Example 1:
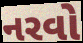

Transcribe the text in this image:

નરવો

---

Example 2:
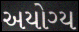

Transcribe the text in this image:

અયોગ્ય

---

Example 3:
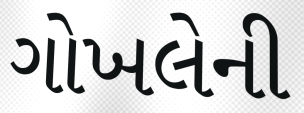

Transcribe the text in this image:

ગોખલેની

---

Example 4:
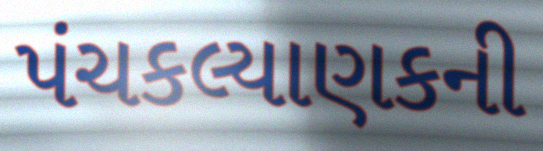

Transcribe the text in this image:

પંચકલ્યાણકની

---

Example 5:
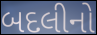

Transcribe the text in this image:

બદલીનો